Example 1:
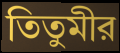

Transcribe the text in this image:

তিতুমীর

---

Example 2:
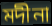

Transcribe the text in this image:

মদীনা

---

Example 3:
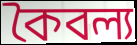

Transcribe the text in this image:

কৈবল্য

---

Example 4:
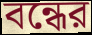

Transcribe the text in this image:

বন্ধের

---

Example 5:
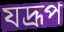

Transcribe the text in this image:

যদ্রূপ